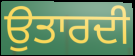
ਉਤਾਰਦੀ